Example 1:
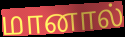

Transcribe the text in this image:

மானால்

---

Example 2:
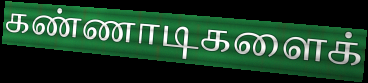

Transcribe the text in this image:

கண்ணாடிகளைக்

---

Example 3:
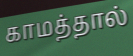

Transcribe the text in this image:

காமத்தால்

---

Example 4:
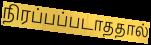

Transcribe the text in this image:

நிரப்பப்படாததால்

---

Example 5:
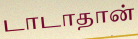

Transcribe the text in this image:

டாடாதான்